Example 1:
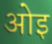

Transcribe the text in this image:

ओइ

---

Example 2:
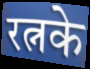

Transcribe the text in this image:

रत्नके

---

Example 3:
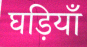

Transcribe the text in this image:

घड़ियाँ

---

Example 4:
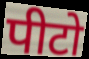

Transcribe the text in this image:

पीटो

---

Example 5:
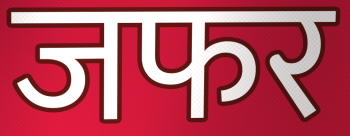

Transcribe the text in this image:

जफर